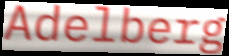
Adelberg